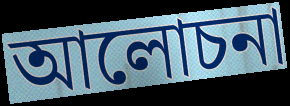
আলোচনা